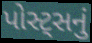
પોસ્ટ્સનું